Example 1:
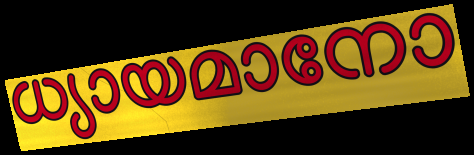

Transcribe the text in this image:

ധ്യായമാനോ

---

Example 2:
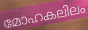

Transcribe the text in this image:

മോഹകലിലം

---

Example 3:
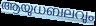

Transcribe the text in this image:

ആയുധബലവും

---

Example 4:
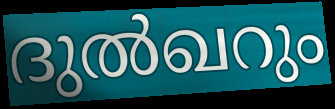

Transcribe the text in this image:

ദുൽഖറും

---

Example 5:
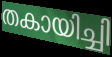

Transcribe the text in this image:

തകായിച്ചി